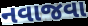
નવાજવા